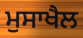
ਮੁਸਾਖੈਲ